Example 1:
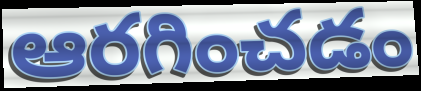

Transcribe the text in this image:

ఆరగించడం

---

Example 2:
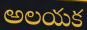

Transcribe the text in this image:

అలయక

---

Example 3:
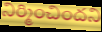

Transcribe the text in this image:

నిర్మించిందని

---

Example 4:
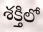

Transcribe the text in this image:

శక్తిలో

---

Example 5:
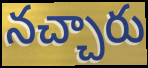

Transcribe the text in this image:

నచ్చారు